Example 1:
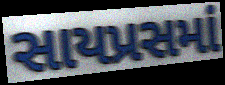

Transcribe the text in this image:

સાયપ્રસમાં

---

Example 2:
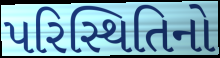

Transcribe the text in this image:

પરિસ્થિતિનો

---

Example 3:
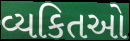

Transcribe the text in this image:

વ્યકિતઓ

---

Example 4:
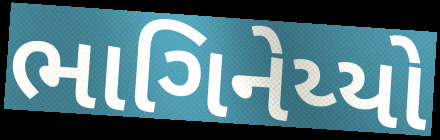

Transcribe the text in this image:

ભાગિનેય્યો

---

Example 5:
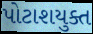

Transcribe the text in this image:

પોટાશયુક્ત